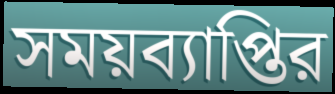
সময়ব্যাপ্তির